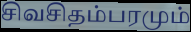
சிவசிதம்பரமும்